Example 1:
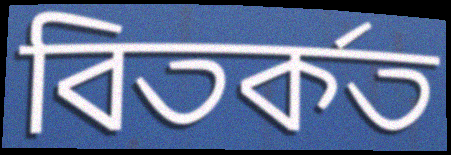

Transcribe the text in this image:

বিতৰ্কত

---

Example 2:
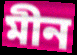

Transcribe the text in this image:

মীন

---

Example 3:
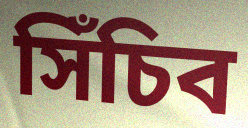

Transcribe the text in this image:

সিঁচিব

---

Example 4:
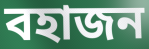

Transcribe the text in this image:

বহাজন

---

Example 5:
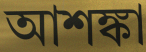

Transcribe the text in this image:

আশঙ্কা